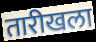
तारीखला